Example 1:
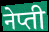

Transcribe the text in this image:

नेप्ती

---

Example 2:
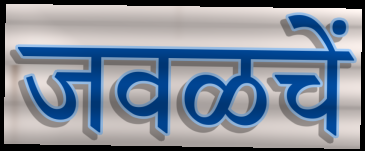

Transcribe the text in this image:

जवळचें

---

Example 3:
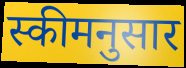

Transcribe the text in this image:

स्कीमनुसार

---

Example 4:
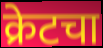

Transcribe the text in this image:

क्रेटचा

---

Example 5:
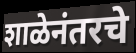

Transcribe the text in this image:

शाळेनंतरचे